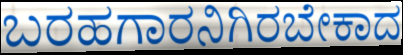
ಬರಹಗಾರನಿಗಿರಬೇಕಾದ